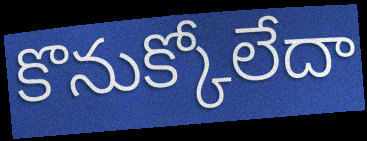
కొనుక్కోలేదా